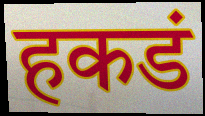
हकडं